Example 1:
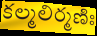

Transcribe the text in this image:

కల్మలిర్మణిః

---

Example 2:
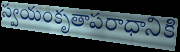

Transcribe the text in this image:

స్వయంకృతాపరాధానికి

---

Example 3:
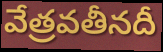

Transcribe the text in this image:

వేత్రవతీనదీ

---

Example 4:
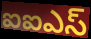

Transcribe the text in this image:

ఐఐఎస్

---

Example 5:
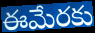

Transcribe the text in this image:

ఈమేరకు